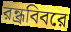
রন্ধ্রবিবরে